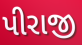
પીરાજી